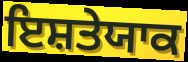
ਇਸ਼ਤੇਯਾਕ